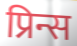
प्रिन्स